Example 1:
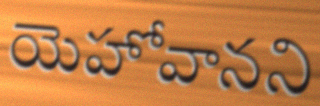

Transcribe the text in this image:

యెహోవానని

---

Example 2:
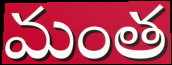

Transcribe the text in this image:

మంత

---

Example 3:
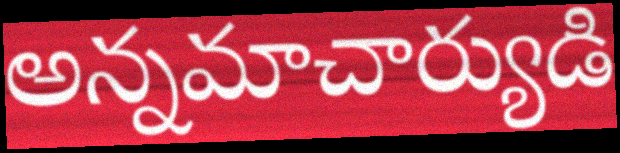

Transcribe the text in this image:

అన్నమాచార్యుడి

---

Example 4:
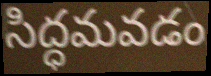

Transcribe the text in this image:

సిద్ధమవడం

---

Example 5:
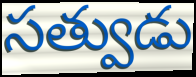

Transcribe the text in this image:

సత్వుడు